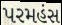
પરમહંસ